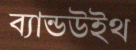
ব্যান্ডউইথ